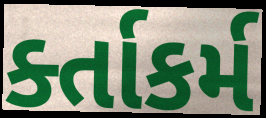
ર્ક્તાકર્મ